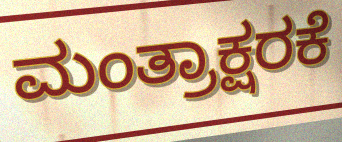
ಮಂತ್ರಾಕ್ಷರಕೆ